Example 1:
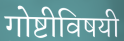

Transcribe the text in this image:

गोष्टीविषयी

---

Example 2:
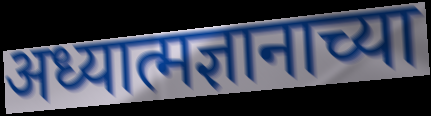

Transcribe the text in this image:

अध्यात्मज्ञानाच्या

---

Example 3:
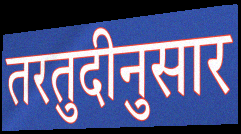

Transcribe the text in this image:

तरतुदीनुसार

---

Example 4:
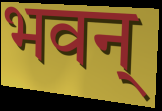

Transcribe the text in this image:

भवन्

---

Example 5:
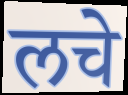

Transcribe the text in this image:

लचे